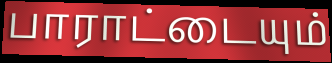
பாராட்டையும்